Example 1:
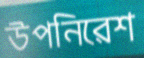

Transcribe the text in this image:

উপনিৱেশ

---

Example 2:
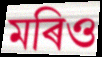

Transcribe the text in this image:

মৰিও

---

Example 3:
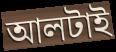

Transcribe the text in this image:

আলটাই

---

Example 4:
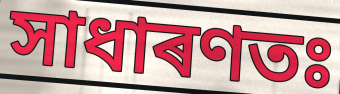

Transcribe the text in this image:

সাধাৰণতঃ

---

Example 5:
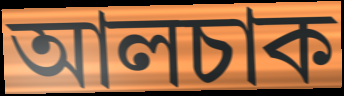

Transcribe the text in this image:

আলচাক